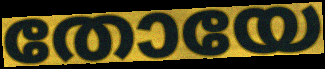
തോയേ